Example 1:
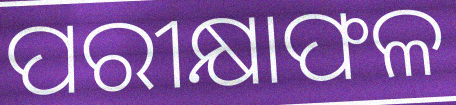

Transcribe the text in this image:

ପରୀକ୍ଷାଫଳ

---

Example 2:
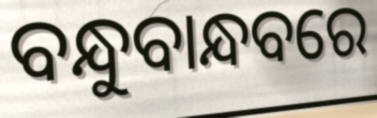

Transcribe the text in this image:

ବନ୍ଧୁବାନ୍ଧବରେ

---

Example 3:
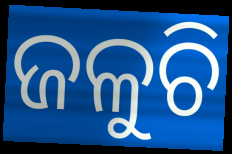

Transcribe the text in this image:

ଜଳୁଚି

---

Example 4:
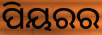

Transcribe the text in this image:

ପିୟରର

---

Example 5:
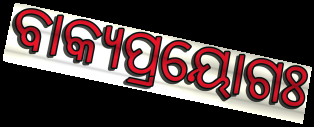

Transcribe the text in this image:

ବାକ୍ୟପ୍ରୟୋଗଃ